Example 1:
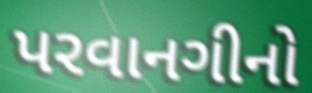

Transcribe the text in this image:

પરવાનગીનો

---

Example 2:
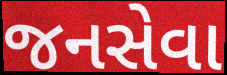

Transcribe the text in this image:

જનસેવા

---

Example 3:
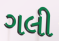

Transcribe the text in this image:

ગલી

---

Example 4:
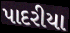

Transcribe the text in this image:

પાદરીયા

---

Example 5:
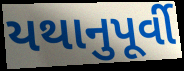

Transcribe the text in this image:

યથાનુપૂર્વી